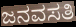
ಜನವಸತಿ